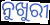
ନୁଖୁରୀ